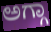
ಅಗ್ಗಾ